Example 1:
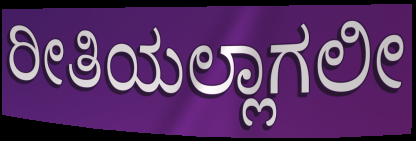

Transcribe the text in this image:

ರೀತಿಯಲ್ಲಾಗಲೀ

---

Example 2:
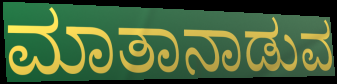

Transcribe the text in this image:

ಮಾತಾನಾಡುವ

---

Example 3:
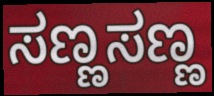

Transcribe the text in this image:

ಸಣ್ಣಸಣ್ಣ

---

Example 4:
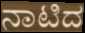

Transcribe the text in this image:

ನಾಟಿದ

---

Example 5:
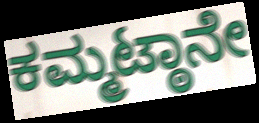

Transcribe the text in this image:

ಕಮ್ಮಟ್ಠಾನೇ